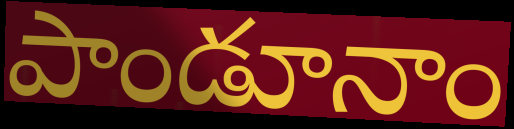
పాండూనాం